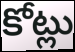
కోట్లు